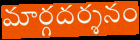
మార్గదర్శనం